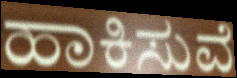
ಹಾಕಿಸುವೆ